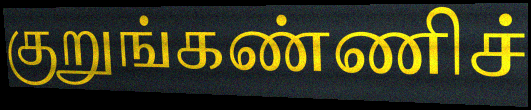
குறுங்கண்ணிச்